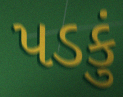
પડકું